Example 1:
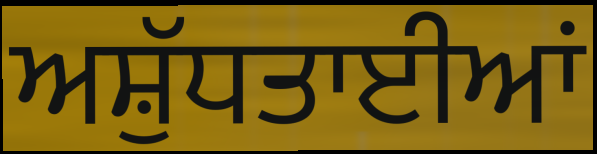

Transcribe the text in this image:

ਅਸ਼ੁੱਧਤਾਈਆਂ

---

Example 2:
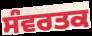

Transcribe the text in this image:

ਸੰਵਰਤਕ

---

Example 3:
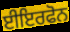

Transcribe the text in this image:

ਈਇਰਫੋਨ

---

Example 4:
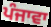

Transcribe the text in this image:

ਪੰਜਾਵਾ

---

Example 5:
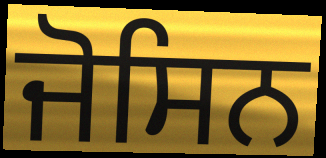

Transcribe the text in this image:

ਜੋਸਿਨ